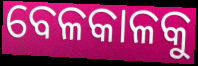
ବେଳକାଳକୁ